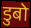
डुबो